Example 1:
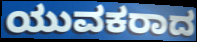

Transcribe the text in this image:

ಯುವಕರಾದ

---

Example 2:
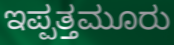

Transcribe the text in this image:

ಇಪ್ಪತ್ತಮೂರು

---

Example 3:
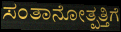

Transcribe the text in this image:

ಸಂತಾನೋತ್ಪತ್ತಿಗೆ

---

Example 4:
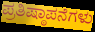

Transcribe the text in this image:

ಪ್ರತಿಷ್ಠಾಪನೆಗಳು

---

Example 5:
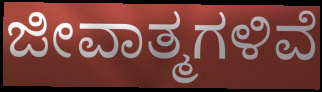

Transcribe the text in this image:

ಜೀವಾತ್ಮಗಳಿವೆ